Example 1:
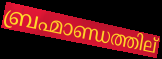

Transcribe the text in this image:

ബ്രഹ്മാണ്ഡത്തില്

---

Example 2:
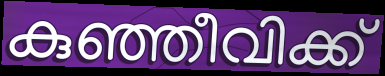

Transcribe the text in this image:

കുഞ്ഞീവിക്ക്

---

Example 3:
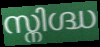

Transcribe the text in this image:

സ്നിഗ്ദ്ധ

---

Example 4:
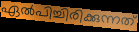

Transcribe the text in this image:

ഏൽപിച്ചിരിക്കുന്നത്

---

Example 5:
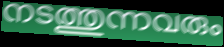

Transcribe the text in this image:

നടത്തുന്നവരും